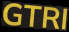
GTRI